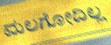
ಮಲಗೋದಿಲ್ಲ